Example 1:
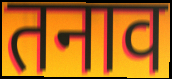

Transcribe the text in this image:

तनाव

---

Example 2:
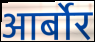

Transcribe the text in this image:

आर्बोर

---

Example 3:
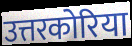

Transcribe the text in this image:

उत्तरकोरिया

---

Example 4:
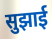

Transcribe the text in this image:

सुझाई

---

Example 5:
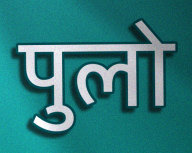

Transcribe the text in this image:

पुलो